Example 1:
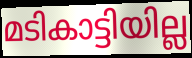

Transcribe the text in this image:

മടികാട്ടിയില്ല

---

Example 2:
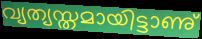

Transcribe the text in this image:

വ്യത്യസ്തമായിട്ടാണു്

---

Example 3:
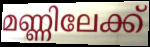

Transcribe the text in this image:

മണ്ണിലേക്ക്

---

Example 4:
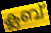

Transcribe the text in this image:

ക്ലബ്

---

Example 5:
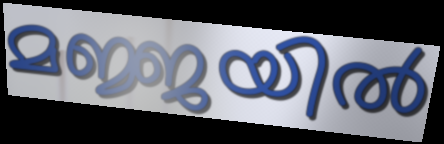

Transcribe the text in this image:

മജ്ജയിൽ